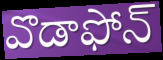
వొడాఫోన్